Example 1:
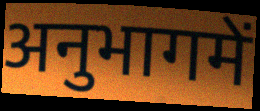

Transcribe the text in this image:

अनुभागमें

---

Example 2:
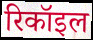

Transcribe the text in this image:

रिकॉइल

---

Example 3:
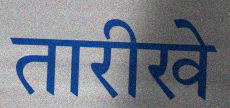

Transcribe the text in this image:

तारीखे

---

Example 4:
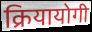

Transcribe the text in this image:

क्रियायोगी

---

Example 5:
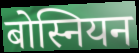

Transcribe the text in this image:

बोस्नियन